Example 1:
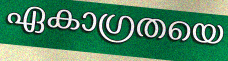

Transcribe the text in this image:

ഏകാഗ്രതയെ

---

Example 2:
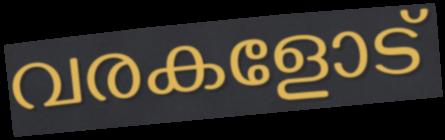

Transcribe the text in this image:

വരകളോട്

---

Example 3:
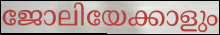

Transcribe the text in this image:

ജോലിയേക്കാളും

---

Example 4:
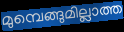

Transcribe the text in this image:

മുമ്പെങ്ങുമില്ലാത്ത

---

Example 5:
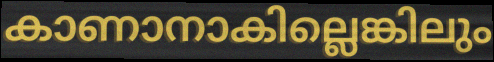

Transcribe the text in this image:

കാണാനാകില്ലെങ്കിലും